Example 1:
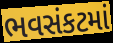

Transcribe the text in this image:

ભવસંકટમાં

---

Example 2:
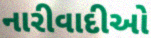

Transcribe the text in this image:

નારીવાદીઓ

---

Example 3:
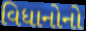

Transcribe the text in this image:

વિધાનોનો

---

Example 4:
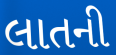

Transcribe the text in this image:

લાતની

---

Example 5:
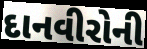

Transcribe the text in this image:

દાનવીરોની